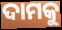
ଦାମକୁ